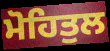
ਮੋਹਿਤੁਲ